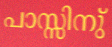
പാസ്സിനു്